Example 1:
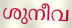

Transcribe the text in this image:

ശുനീവ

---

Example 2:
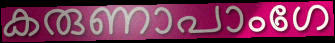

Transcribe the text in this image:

കരുണാപാംഗേ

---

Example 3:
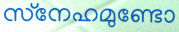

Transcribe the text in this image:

സ്‌നേഹമുണ്ടോ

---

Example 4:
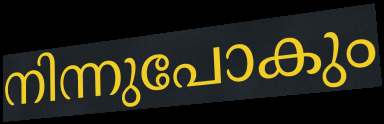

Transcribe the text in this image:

നിന്നുപോകും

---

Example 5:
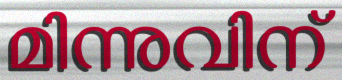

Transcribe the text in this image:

മിന്നുവിന്